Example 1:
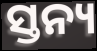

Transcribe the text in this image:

ସ୍ତନ୍ୟ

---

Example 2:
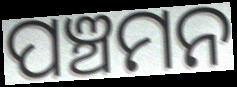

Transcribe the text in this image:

ପଞ୍ଚମନ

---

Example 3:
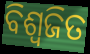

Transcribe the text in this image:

ବିଶ୍ଵଜିତ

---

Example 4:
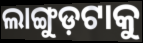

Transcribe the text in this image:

ଲାଙ୍ଗୁଡ଼ଟାକୁ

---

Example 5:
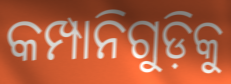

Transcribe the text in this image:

କମ୍ପାନିଗୁଡ଼ିକୁ